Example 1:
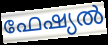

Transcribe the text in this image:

ഫേഷ്യൽ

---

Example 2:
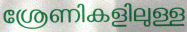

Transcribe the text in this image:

ശ്രേണികളിലുള്ള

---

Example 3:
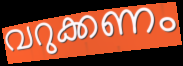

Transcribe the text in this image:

വറുക്കണം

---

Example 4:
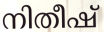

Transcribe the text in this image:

നിതീഷ്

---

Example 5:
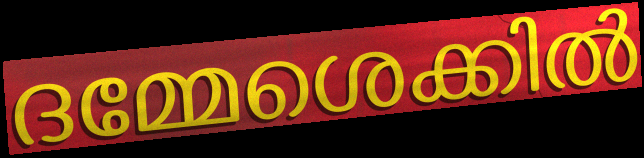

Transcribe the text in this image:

ദമ്മേശെക്കിൽ